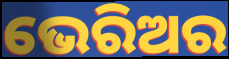
ଭେରିଅର